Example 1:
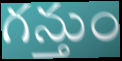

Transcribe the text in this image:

గన్తుం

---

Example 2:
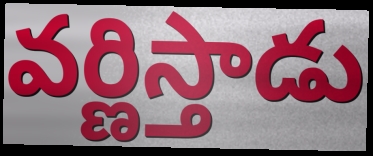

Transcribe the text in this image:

వర్ణిస్తాడు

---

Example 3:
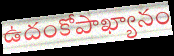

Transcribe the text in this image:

ఉదంకోపాఖ్యానం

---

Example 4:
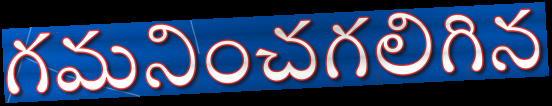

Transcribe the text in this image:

గమనించగలిగిన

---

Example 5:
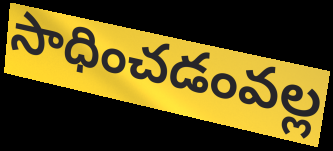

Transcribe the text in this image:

సాధించడంవల్ల